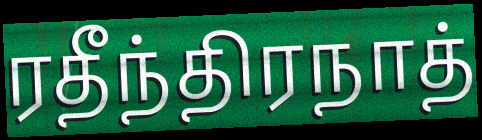
ரதீந்திரநாத்